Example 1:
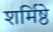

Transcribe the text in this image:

शर्मिष्ठे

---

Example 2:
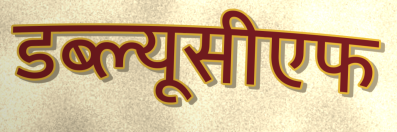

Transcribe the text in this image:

डब्ल्यूसीएफ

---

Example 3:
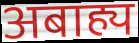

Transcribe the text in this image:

अबाह्य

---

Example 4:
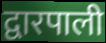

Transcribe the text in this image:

द्वारपाली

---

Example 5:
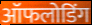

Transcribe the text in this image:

ऑफलोडिंग